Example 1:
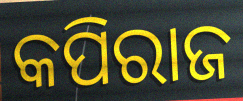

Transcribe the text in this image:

କପିରାଜ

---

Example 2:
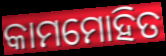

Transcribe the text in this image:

କାମମୋହିତ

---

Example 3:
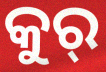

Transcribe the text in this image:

କୁର୍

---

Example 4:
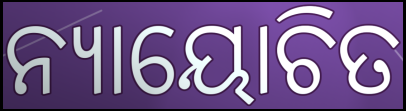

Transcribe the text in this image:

ନ୍ୟାୟୋଚିତ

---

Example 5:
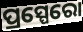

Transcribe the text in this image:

ପ୍ରସ୍ପେରୋ